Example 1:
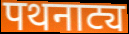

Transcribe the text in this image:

पथनाट्य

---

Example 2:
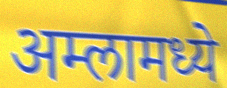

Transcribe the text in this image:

अम्लामध्ये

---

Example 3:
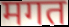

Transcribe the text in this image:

मगत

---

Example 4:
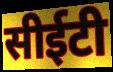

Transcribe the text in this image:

सीईटी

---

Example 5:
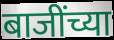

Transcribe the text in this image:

बाजींच्या